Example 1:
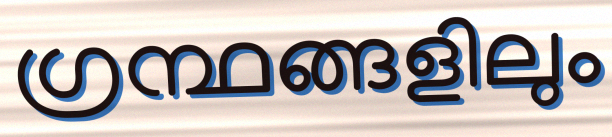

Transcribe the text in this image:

ഗ്രന്ഥങ്ങളിലും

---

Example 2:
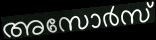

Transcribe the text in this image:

അസോർസ്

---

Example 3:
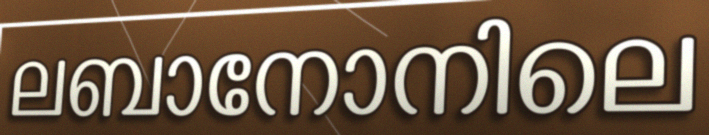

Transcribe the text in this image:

ലബാനോനിലെ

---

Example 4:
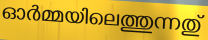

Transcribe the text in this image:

ഓർമ്മയിലെത്തുന്നതു്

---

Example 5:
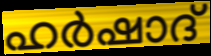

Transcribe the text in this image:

ഹർഷാദ്